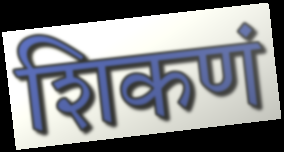
शिकणं